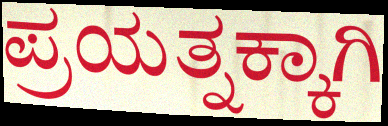
ಪ್ರಯತ್ನಕ್ಕಾಗಿ